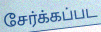
சேர்க்கப்பட